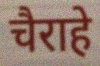
चैराहे